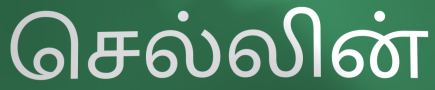
செல்லின்